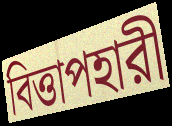
বিত্তাপহারী